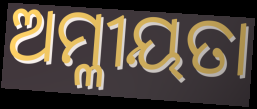
ଅମ୍ଳୀୟତା